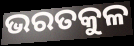
ଭରତକୁଳ